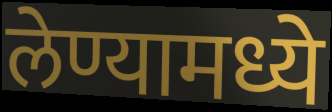
लेण्यामध्ये